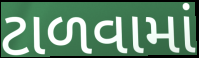
ટાળવામાં